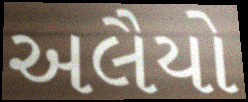
અલૈયો